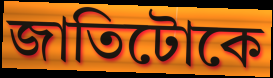
জাতিটোকে